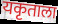
यकृताला